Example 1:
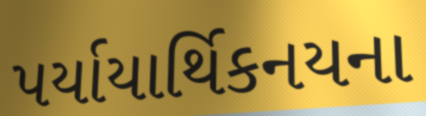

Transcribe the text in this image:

પર્યાયાર્થિકનયના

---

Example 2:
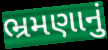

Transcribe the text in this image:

ભ્રમણાનું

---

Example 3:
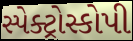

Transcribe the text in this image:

સ્પેક્ટ્રોસ્કોપી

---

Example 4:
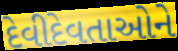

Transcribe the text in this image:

દેવીદેવતાઓને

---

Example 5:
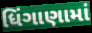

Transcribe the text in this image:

ધિંગાણામાં